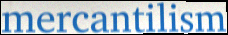
mercantilism